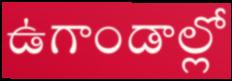
ఉగాండాల్లో